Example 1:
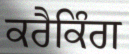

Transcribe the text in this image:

ਕਰੈਕਿੰਗ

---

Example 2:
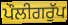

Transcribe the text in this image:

ਪੌਲੀਗਰੁੱਪ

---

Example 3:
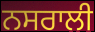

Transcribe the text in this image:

ਨਸਰਾਲੀ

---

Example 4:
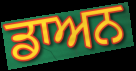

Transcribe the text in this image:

ਡਾਅਨ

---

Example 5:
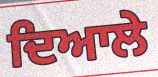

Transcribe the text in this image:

ਦਿਆਲੇ